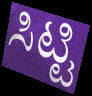
ಸಿಟ್ಟಿ